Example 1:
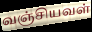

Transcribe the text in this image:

வஞ்சியவள்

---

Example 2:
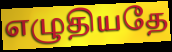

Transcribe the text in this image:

எழுதியதே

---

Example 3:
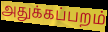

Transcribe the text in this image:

அதுக்கப்பறம்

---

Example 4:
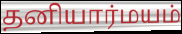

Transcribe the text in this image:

தனியார்மயம்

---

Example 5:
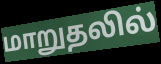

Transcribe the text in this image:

மாறுதலில்